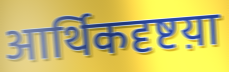
आर्थिकदृष्टय़ा